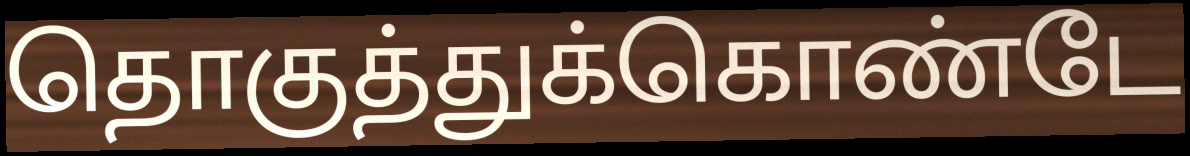
தொகுத்துக்கொண்டே